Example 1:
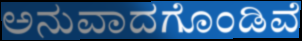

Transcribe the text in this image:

ಅನುವಾದಗೊಂಡಿವೆ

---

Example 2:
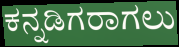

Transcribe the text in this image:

ಕನ್ನಡಿಗರಾಗಲು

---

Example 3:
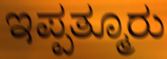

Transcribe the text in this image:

ಇಪ್ಪತ್ಮೂರು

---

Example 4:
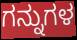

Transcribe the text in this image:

ಗನ್ನುಗಳ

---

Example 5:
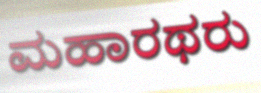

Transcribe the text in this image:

ಮಹಾರಥರು